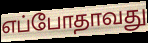
எப்போதாவது